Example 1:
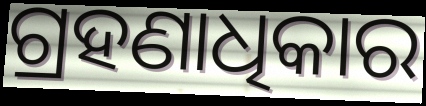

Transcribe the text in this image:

ଗ୍ରହଣାଧିକାର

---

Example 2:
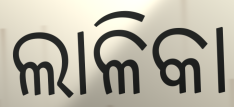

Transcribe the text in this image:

ଲାଳିକା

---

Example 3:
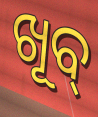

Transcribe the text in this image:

ଖୂବ୍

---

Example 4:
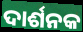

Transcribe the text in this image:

ଦାର୍ଶନକ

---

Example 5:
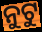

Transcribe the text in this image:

ନୁଟୁ